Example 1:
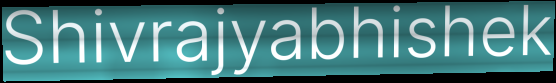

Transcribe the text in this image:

Shivrajyabhishek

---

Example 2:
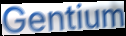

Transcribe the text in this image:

Gentium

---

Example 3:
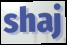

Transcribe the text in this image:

shaj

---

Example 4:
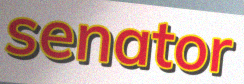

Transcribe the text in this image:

senator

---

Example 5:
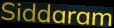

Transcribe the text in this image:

Siddaram